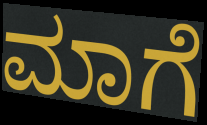
ಮಾಗೆ